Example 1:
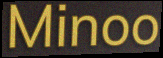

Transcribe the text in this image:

Minoo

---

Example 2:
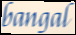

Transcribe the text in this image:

bangal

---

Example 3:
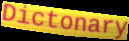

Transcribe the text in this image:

Dictonary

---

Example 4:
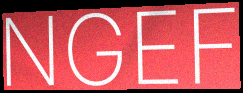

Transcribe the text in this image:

NGEF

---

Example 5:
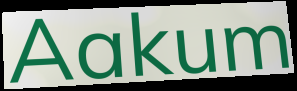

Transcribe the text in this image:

Aakum